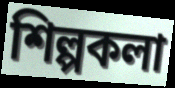
শিল্পকলা